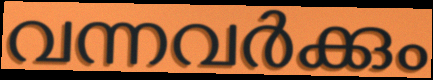
വന്നവർക്കും